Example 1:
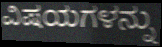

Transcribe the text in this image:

ವಿಷಯಗಳನ್ನು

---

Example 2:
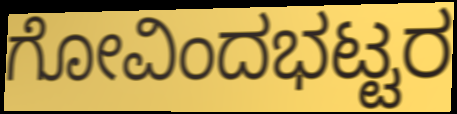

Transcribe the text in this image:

ಗೋವಿಂದಭಟ್ಟರ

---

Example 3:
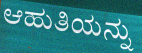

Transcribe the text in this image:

ಆಹುತಿಯನ್ನು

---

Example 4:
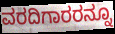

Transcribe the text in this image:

ವರದಿಗಾರರನ್ನೂ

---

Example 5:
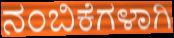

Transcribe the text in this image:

ನಂಬಿಕೆಗಳಾಗಿ